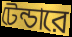
টেন্ডারে